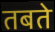
तबते